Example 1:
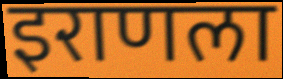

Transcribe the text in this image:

इराणला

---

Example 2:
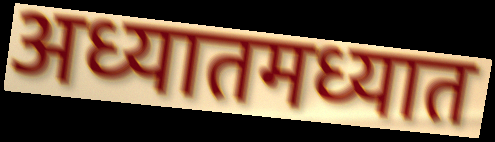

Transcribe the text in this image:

अध्यातमध्यात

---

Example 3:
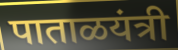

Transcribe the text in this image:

पाताळयंत्री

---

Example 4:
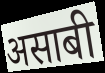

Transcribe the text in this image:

असाबी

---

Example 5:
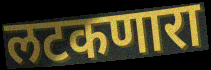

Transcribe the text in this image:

लटकणारा